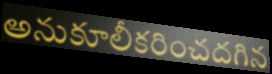
అనుకూలీకరించదగిన